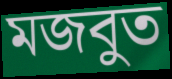
মজবুত